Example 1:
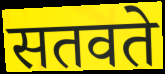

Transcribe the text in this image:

सतवते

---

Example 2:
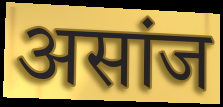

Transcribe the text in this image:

असांज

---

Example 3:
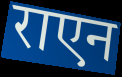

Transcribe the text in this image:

राएन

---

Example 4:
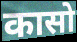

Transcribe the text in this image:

कासो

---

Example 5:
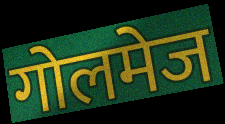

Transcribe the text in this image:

गोलमेज